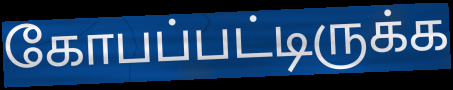
கோபப்பட்டிருக்க